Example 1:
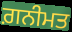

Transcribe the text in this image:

ਗ਼ਨੀਮਤ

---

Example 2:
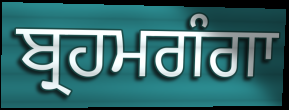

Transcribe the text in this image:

ਬ੍ਰਹਮਗੰਗਾ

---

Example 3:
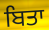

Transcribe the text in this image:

ਬਿਤਾ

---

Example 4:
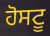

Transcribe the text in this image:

ਹੋਸਟੂ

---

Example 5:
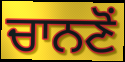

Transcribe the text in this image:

ਚਾਨਣੋਂ